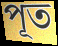
পূত